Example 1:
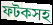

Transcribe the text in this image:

ফটকসহ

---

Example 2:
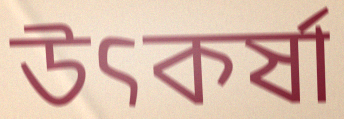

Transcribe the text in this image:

উৎকর্ষা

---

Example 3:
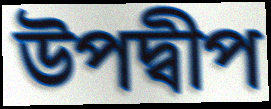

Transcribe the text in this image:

উপদ্বীপ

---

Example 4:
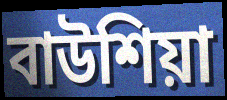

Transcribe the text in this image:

বাউশিয়া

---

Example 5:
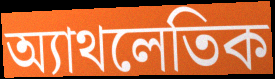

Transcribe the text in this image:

অ্যাথলেতিক